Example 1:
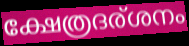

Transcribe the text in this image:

ക്ഷേത്രദര്ശനം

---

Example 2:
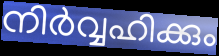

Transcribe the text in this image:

നിർവ്വഹിക്കും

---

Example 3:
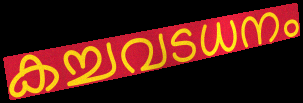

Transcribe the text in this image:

കച്ചവടധനം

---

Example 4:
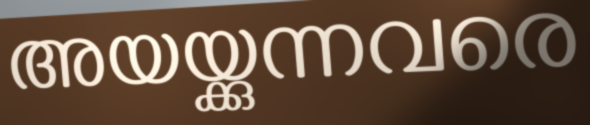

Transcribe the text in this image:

അയയ്ക്കുന്നവരെ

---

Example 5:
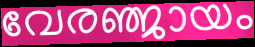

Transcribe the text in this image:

വേരഞ്ജായം